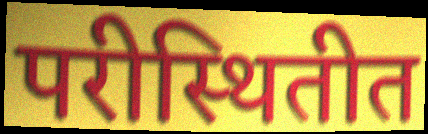
परीस्थितीत